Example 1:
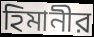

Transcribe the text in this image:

হিমানীর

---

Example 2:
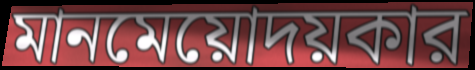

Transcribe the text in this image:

মানমেয়োদয়কার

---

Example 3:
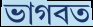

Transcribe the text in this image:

ভাগবত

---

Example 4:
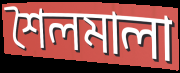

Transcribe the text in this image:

শৈলমালা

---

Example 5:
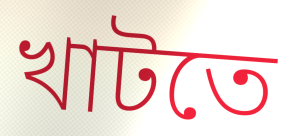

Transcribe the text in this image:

খাটতে